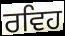
ਰਵਿਹ